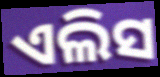
ଏଲିସ